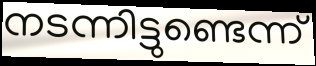
നടന്നിട്ടുണ്ടെന്ന്